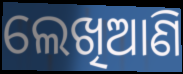
ଲେଖିଆଣି